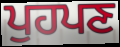
ਪੁਹਪਣ